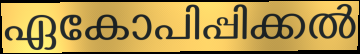
ഏകോപിപ്പിക്കൽ